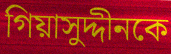
গিয়াসুদ্দীনকে